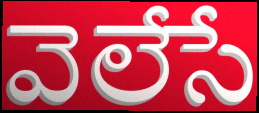
వెలేసే